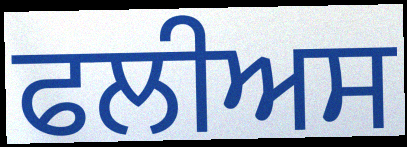
ਫਲੀਅਸ